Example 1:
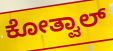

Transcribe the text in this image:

ಕೋತ್ವಾಲ್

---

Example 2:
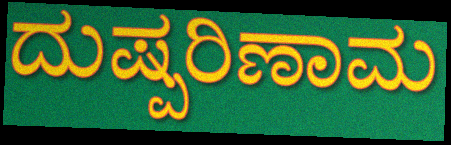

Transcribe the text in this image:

ದುಷ್ಪರಿಣಾಮ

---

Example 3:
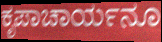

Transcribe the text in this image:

ಕೃಪಾಚಾರ್ಯನೂ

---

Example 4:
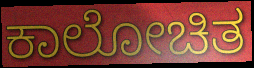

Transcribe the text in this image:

ಕಾಲೋಚಿತ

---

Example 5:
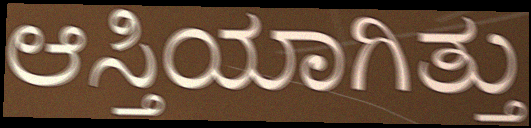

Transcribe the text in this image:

ಆಸ್ತಿಯಾಗಿತ್ತು